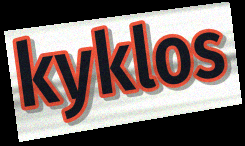
kyklos